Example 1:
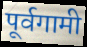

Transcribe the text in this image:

पूर्वगामी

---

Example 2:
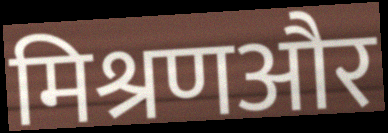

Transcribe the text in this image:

मिश्रणऔर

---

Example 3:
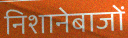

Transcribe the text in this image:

निशानेबाजों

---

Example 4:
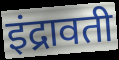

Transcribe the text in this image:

इंद्रावती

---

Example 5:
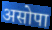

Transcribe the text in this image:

असोपा